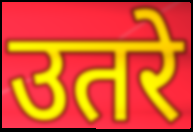
उतरे